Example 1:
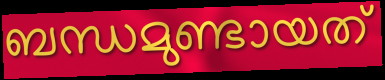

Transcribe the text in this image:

ബന്ധമുണ്ടായത്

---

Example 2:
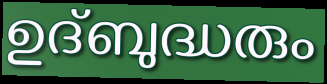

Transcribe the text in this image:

ഉദ്ബുദ്ധരും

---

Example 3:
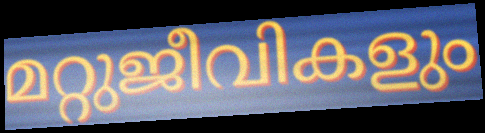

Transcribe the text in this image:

മറ്റുജീവികളും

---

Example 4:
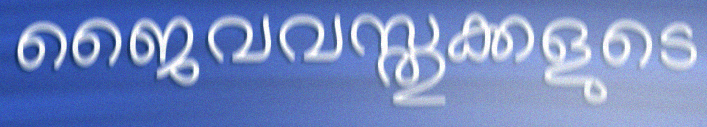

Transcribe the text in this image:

ജൈവവസ്തുക്കളുടെ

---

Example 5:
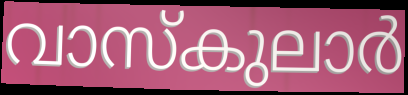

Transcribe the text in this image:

വാസ്കുലാർ